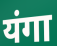
यंगा